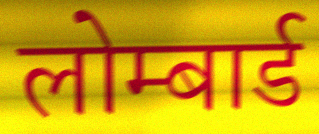
लोम्बार्ड